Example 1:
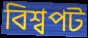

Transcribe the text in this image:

বিশ্বপট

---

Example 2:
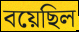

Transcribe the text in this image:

বয়েছিল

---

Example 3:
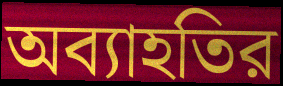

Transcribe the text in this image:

অব্যাহতির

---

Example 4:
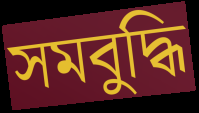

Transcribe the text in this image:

সমবুদ্ধি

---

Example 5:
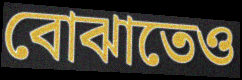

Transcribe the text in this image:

বোঝাতেও